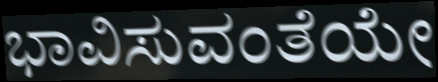
ಭಾವಿಸುವಂತೆಯೇ